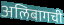
अलिबागची